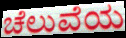
ಚೆಲುವೆಯ